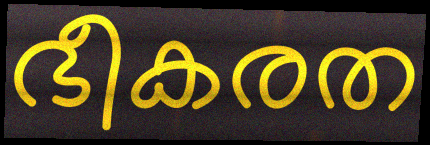
ഭീകരത